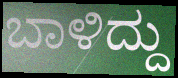
ಬಾಳಿದ್ದು